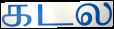
கடல